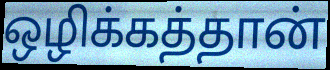
ஒழிக்கத்தான்